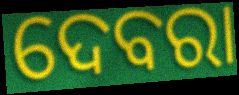
ଦେବରା